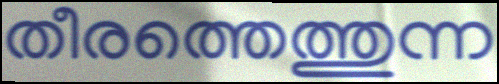
തീരത്തെത്തുന്ന